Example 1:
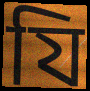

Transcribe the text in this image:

যি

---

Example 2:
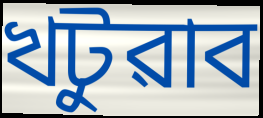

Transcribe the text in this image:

খটুৱাব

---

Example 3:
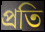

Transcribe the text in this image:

প্ৰতি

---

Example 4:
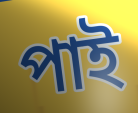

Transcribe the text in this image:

পাই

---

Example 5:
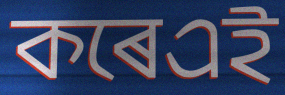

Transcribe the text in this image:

কৰেএই